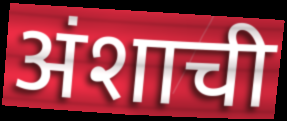
अंशाची